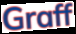
Graff